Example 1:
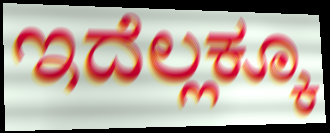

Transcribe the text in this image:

ಇದೆಲ್ಲಕ್ಕೂ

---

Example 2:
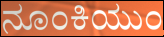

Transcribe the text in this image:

ನೂಂಕಿಯುಂ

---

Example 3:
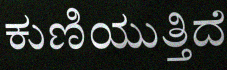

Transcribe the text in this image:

ಕುಣಿಯುತ್ತಿದೆ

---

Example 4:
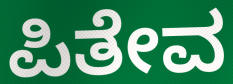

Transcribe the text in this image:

ಪಿತೇವ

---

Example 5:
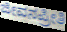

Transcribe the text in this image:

ಜೀವನಪ್ರೀತಿ